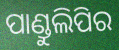
ପାଣ୍ଡୁଲିପିର